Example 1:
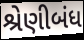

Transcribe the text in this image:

શ્રેણીબંધ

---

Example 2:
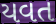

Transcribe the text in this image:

યવત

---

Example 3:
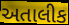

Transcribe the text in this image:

અતાલીક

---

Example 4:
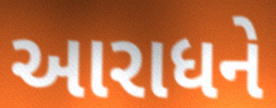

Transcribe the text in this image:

આરાધને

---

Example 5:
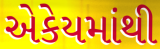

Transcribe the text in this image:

એકેયમાંથી